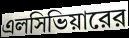
এলসিভিয়ারের